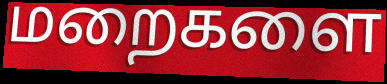
மறைகளை